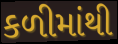
કળીમાંથી